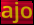
ajo